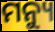
ମନ୍ୟୁ